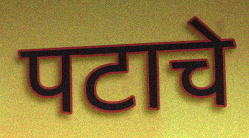
पटाचे